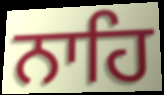
ਨਾਹਿ